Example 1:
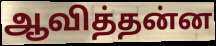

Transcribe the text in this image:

ஆவித்தன்ன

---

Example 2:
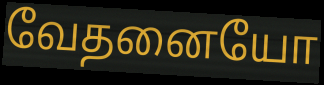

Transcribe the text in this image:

வேதனையோ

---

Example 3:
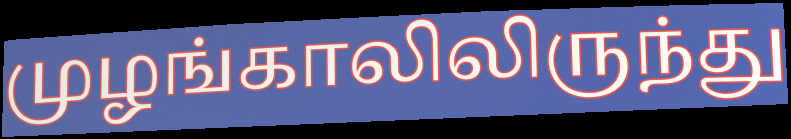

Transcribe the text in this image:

முழங்காலிலிருந்து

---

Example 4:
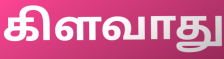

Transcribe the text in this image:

கிளவாது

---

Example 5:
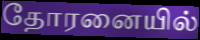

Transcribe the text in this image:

தோரனையில்